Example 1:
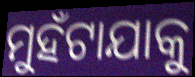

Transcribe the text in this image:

ମୁହଁଟାଯାକୁ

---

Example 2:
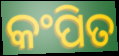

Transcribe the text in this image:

କଂପିତ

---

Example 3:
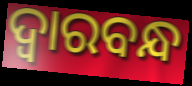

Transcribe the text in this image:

ଦ୍ବାରବନ୍ଧ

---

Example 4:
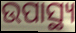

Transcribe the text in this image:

ଉପାସ୍ଥ୍ୟ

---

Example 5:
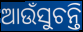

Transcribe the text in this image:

ଆଉଁସୁଚନ୍ତି